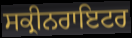
ਸਕ੍ਰੀਨਰਾਇਟਰ